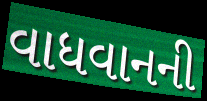
વાધવાનની